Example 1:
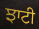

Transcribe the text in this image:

ਝਾਟੀ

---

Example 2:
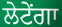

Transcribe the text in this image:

ਲੇਟੇਂਗਾ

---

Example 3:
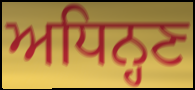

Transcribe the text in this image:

ਅਧਿਨ੍ਹਣ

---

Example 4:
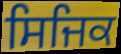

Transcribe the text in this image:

ਸਿਜਿਕ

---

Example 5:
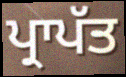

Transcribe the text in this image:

ਪ੍ਰਾਪੱਤ